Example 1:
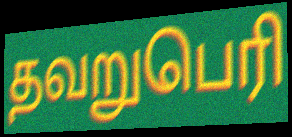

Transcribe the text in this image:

தவறுபெரி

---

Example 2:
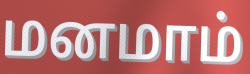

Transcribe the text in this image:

மனமாம்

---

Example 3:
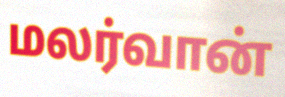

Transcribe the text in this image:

மலர்வான்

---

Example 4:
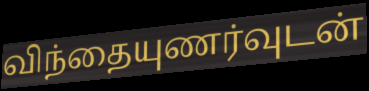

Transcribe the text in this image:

விந்தையுணர்வுடன்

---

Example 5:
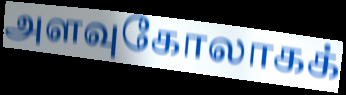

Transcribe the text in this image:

அளவுகோலாகக்